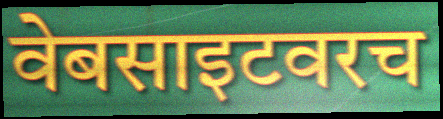
वेबसाइटवरच